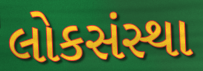
લોકસંસ્થા